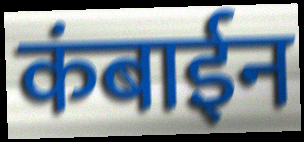
कंबाईन